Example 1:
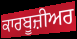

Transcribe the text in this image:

ਕਾਰਬੂਜ਼ੀਅਰ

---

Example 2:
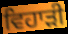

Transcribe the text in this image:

ਵਿਹਾੜੀ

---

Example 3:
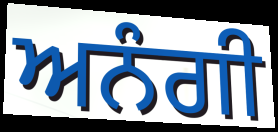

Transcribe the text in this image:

ਅਨੰਗੀ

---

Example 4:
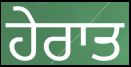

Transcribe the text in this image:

ਹੇਰਾਤ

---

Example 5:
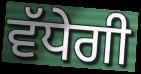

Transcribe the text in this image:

ਵੱਧੇਗੀ